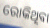
ରୋକିଥିବା